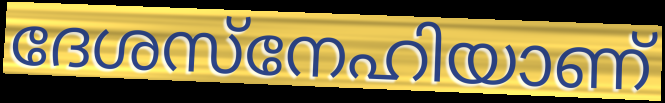
ദേശസ്നേഹിയാണ്